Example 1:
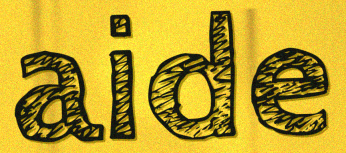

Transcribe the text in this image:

aide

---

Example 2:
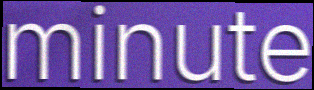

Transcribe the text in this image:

minute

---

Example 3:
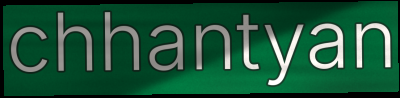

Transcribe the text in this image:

chhantyan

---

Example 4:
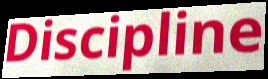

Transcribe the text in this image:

Discipline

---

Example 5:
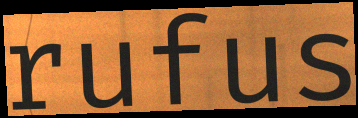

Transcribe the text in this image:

rufus